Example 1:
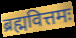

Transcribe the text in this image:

ब्रह्मवित्तमः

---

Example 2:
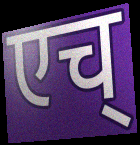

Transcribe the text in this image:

एच्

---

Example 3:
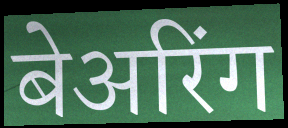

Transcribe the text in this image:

बेअरिंग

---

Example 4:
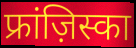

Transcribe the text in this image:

फ्रांज़िस्का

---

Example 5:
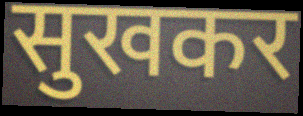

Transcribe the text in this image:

सुखकर